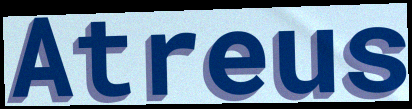
Atreus